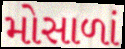
મોસાળાં